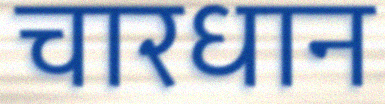
चारधान